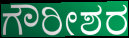
ಗೌರೀಶರ